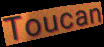
Toucan